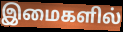
இமைகளில்